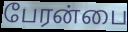
பேரன்பை